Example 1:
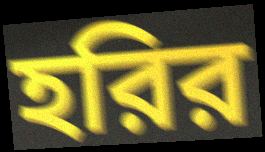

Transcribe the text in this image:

হরির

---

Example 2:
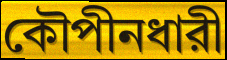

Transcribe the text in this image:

কৌপীনধারী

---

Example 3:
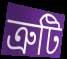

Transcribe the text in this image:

ত্রুটি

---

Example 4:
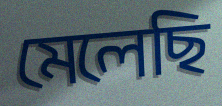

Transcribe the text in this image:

মেলেছি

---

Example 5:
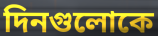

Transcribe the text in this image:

দিনগুলোকে